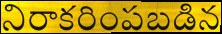
నిరాకరింపబడిన